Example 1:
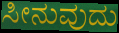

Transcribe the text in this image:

ಸೀನುವುದು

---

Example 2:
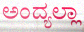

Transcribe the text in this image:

ಅಂದ್ಯಲ್ಲಾ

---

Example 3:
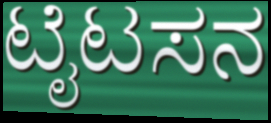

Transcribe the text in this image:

ಟೈಟಸನ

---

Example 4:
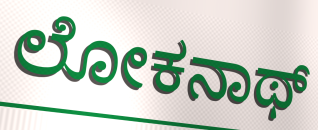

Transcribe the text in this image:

ಲೋಕನಾಥ್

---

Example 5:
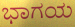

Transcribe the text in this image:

ಭಾಗಯ